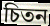
চিতন